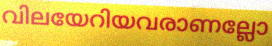
വിലയേറിയവരാണല്ലോ